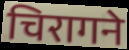
चिरागने